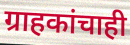
ग्राहकांचाही